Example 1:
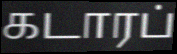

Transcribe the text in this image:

கடாரப்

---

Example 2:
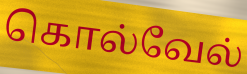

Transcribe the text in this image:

கொல்வேல்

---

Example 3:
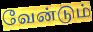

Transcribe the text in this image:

வேன்டும்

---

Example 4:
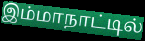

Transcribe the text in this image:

இம்மாநாட்டில்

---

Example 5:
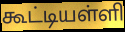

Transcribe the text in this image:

கூட்டியள்ளி